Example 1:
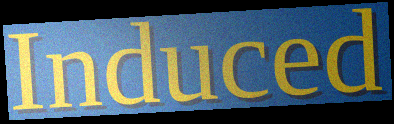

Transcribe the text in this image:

Induced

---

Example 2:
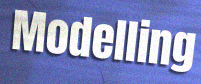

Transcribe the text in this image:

Modelling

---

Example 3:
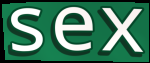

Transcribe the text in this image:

sex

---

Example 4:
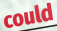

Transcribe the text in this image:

could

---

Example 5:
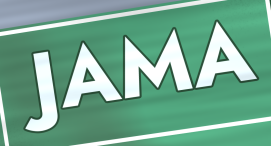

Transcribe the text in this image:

JAMA